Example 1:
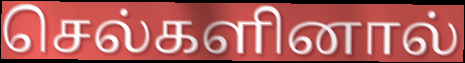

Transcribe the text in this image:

செல்களினால்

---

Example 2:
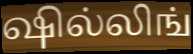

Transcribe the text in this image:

ஷில்லிங்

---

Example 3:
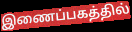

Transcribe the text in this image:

இணைப்பகத்தில்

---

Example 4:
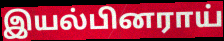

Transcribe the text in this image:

இயல்பினராய்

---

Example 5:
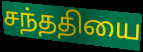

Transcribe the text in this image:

சந்ததியை